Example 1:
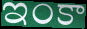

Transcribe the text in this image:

ఇంకా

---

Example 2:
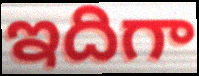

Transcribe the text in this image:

ఇదిగా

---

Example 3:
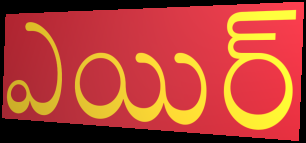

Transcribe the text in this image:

ఎయిర్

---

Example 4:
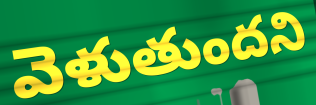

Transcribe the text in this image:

వెళుతుందని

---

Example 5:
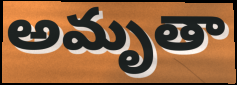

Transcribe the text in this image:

అమృతా